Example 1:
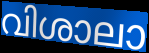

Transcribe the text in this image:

വിശാലാ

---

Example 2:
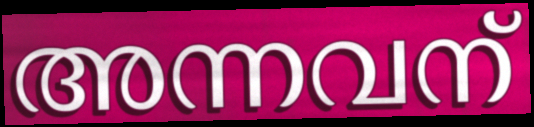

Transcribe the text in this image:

അന്നവന്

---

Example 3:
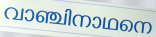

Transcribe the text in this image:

വാഞ്ചിനാഥനെ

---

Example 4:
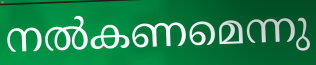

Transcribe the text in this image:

നൽകണമെന്നു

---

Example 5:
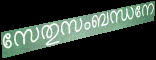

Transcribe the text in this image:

സേതുസംബന്ധനേ